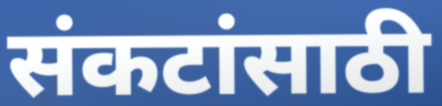
संकटांसाठी